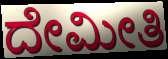
ದೇಮೀತಿ